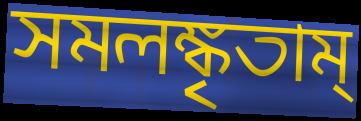
সমলঙ্কৃতাম্